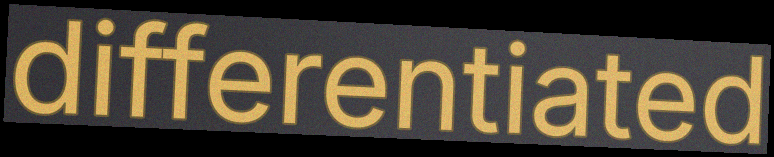
differentiated